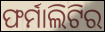
ଫର୍ମାଲିଟିର